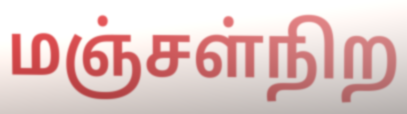
மஞ்சள்நிற